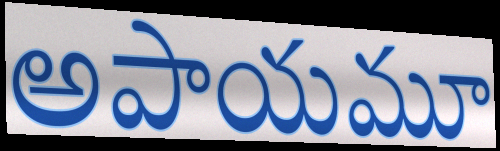
అపాయమూ